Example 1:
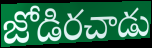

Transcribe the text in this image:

జోడిరచాడు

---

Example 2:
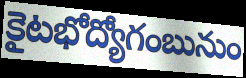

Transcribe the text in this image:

కైటభోద్యోగంబునుం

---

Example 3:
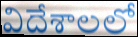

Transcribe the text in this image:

విదేశాలలో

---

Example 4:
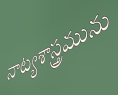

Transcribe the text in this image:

నాట్యశాస్త్రమును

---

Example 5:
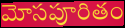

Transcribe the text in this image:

మోసపూరితం